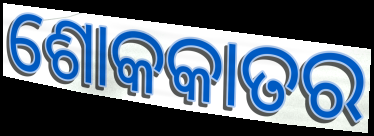
ଶୋକକାତର